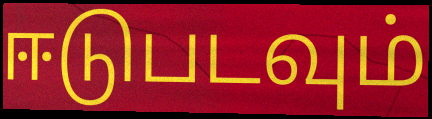
ஈடுபடவும்